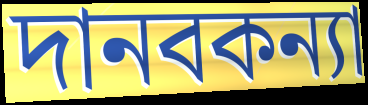
দানবকন্যা